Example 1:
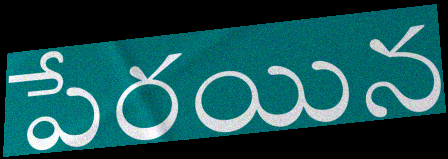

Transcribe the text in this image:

పేరయిన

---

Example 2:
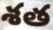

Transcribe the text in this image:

శత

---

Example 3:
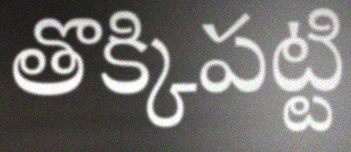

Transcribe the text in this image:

తొక్కిపట్టి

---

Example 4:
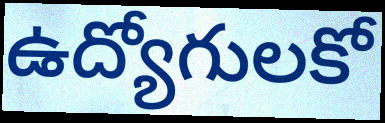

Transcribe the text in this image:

ఉద్యోగులకో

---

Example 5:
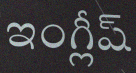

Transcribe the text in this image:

ఇంగ్లీష్